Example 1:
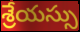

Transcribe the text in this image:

శ్రేయస్సు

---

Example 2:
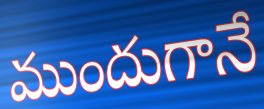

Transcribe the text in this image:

ముందుగానే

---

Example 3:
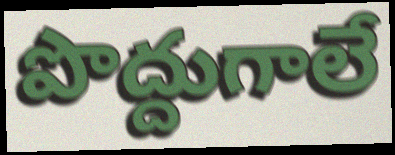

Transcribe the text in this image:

పొద్దుగాలే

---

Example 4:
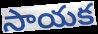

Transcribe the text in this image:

సాయక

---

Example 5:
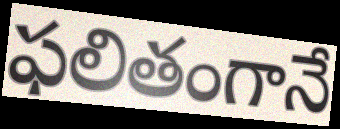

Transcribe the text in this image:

ఫలితంగానే